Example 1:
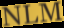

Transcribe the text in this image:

NLM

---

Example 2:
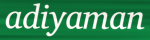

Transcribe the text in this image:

adiyaman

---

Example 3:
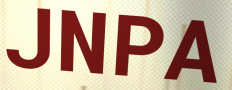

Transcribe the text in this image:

JNPA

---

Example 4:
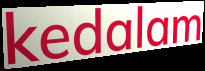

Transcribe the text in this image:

kedalam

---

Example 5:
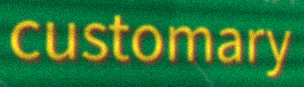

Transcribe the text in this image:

customary